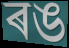
ৰঙ